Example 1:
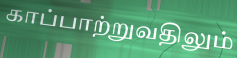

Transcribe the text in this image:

காப்பாற்றுவதிலும்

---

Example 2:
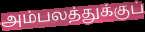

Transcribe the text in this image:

அம்பலத்துக்குப்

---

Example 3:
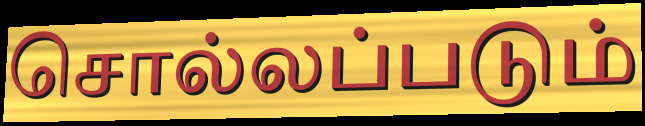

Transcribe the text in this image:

சொல்லப்படும்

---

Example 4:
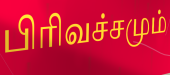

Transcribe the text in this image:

பிரிவச்சமும்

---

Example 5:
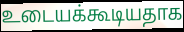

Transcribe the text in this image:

உடையக்கூடியதாக